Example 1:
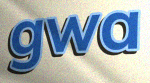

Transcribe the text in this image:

gwa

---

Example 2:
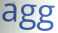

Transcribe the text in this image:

agg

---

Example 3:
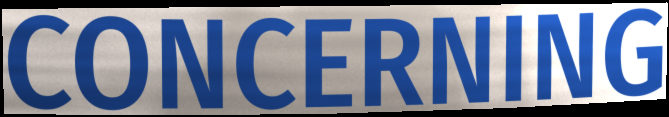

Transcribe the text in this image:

CONCERNING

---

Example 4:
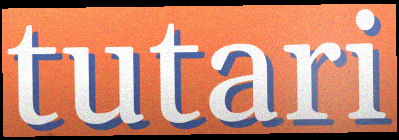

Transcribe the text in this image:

tutari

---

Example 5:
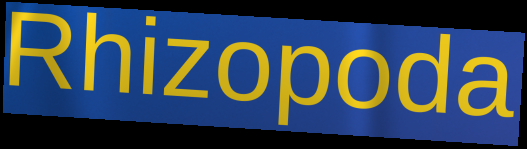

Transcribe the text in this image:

Rhizopoda